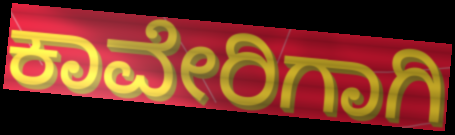
ಕಾವೇರಿಗಾಗಿ